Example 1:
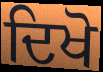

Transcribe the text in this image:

ਦਿਖੋ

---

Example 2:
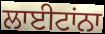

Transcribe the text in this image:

ਲਾਈਟਾਂਨਾ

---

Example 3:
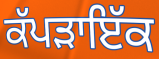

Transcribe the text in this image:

ਕੱਪੜਾਇੱਕ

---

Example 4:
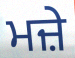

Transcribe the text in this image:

ਮਜ਼ੇ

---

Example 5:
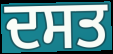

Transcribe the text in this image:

ਦਸਤ